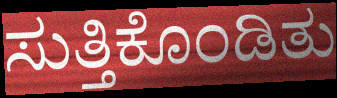
ಸುತ್ತಿಕೊಂಡಿತು